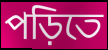
পড়িতে